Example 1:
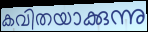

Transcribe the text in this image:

കവിതയാക്കുന്നു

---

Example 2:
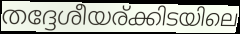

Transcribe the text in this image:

തദ്ദേശീയര്ക്കിടയിലെ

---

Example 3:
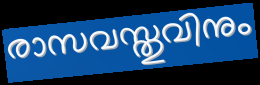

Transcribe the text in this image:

രാസവസ്തുവിനും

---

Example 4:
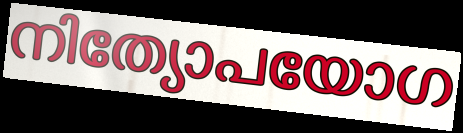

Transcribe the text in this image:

നിത്യോപയോഗ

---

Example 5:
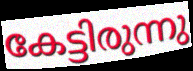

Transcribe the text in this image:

കേട്ടിരുന്നു